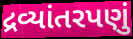
દ્રવ્યાંતરપણું